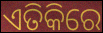
ଏତିକିରେ